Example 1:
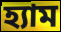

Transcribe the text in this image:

হ্যাম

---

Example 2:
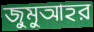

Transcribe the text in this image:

জুমুআহর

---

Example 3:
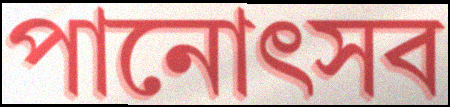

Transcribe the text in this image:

পানোৎসব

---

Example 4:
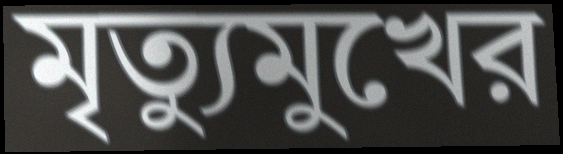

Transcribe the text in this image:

মৃত্যুমুখের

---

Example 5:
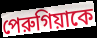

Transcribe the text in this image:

পেরুগিয়াকে